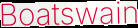
Boatswain